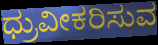
ಧ್ರುವೀಕರಿಸುವ